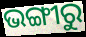
ଭଙ୍ଗୀରୁ